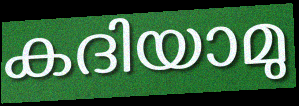
കദിയാമു